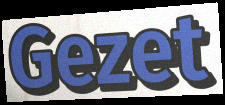
Gezet